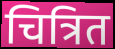
चित्रित